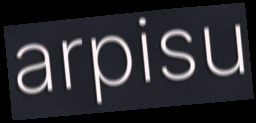
arpisu